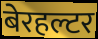
बेरहल्टर